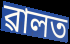
ৱালত